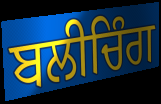
ਬਲੀਚਿੰਗ